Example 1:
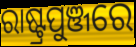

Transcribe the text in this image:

ରାଷ୍ଟ୍ରପୁଞ୍ଜରେ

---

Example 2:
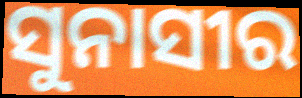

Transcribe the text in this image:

ସୁନାସୀର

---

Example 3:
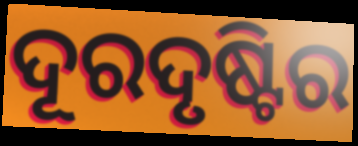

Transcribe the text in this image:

ଦୂରଦୃଷ୍ଟିର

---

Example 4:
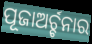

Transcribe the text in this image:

ପୂଜାଅର୍ଚ୍ଚନାର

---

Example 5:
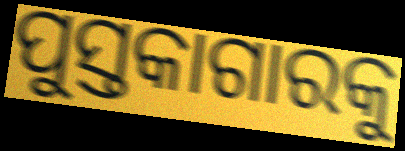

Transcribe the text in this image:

ପୁସ୍ତକାଗାରକୁ